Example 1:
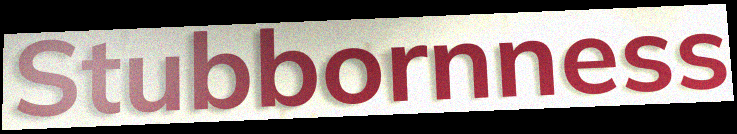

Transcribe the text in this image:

Stubbornness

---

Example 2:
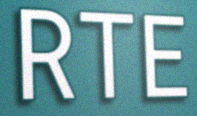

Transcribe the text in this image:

RTE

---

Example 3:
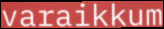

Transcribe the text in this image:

varaikkum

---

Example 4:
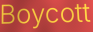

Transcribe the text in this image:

Boycott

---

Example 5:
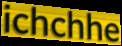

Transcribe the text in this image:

ichchhe